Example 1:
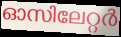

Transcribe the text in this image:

ഓസിലേറ്റർ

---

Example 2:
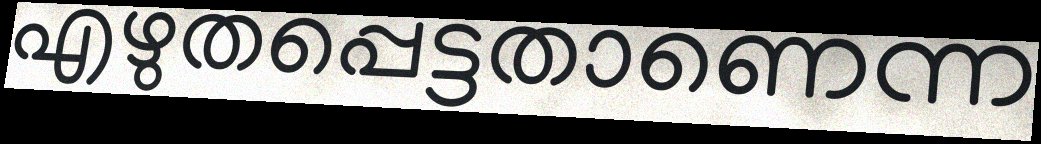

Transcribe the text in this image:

എഴുതപ്പെട്ടതാണെന്ന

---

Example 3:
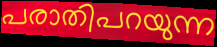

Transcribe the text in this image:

പരാതിപറയുന്ന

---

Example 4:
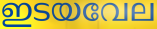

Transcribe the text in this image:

ഇടയവേല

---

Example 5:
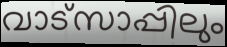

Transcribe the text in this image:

വാട്സാപ്പിലും